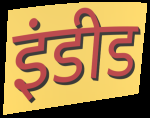
इंडीड